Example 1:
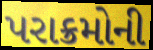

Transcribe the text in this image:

પરાક્રમોની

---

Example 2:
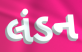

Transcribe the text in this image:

લંડન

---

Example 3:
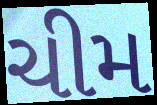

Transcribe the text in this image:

ચીમ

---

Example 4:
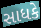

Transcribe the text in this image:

સાધકે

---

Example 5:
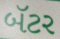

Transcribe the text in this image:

બૅટર